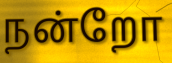
நன்றோ